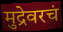
मुद्रेवरचं